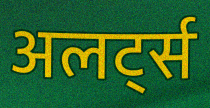
अलर्ट्स